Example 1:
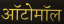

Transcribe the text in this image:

ऑटोमॉल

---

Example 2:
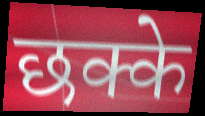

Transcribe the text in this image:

छक्के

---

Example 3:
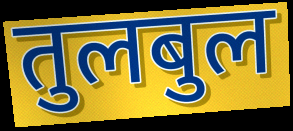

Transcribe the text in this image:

तुलबुल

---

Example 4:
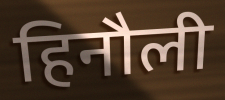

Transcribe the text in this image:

हिनौली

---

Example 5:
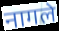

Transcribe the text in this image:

नागले